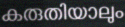
കരുതിയാലും